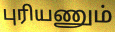
புரியணும்